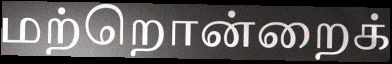
மற்றொன்றைக்